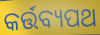
କର୍ତ୍ତବ୍ୟପଥ